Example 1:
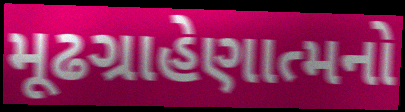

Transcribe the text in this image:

મૂઢગ્રાહેણાત્મનો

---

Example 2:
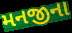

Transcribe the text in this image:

મનજીના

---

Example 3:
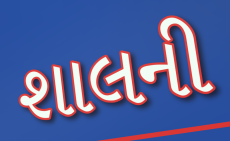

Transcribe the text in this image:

શાલની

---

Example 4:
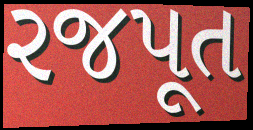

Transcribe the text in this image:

રજપૂત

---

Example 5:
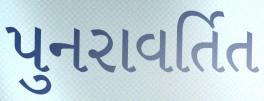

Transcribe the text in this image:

પુનરાવર્તિત